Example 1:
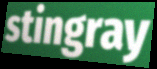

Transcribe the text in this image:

stingray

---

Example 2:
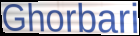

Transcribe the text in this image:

Ghorbari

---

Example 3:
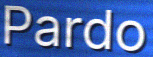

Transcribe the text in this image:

Pardo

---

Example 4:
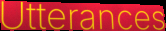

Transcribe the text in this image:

Utterances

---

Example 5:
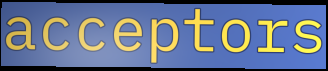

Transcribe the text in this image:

acceptors